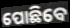
ପୋଛିବେ